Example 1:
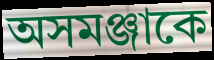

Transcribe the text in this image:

অসমঞ্জাকে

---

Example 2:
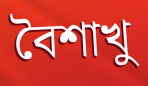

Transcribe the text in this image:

বৈশাখু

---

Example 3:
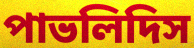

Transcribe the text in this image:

পাভলিদিস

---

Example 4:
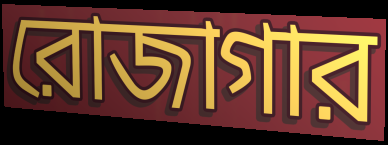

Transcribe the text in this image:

রোজাগার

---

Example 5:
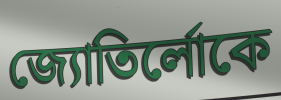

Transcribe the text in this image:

জ্যোতির্লোকে